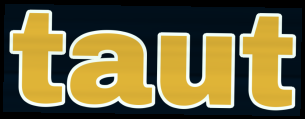
taut